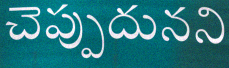
చెప్పుదునని